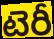
టెరీ